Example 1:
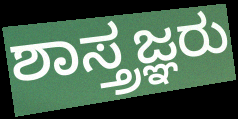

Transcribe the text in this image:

ಶಾಸ್ತ್ರಜ್ಞರು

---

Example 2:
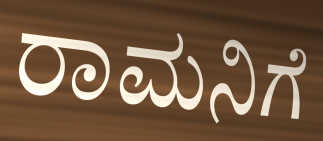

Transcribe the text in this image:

ರಾಮನಿಗೆ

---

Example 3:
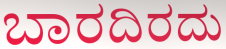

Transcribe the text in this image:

ಬಾರದಿರದು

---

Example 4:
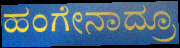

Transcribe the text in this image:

ಹಂಗೇನಾದ್ರೂ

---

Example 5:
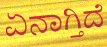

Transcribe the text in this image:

ಏನಾಗ್ತಿದೆ